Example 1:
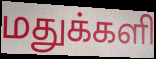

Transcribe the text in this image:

மதுக்களி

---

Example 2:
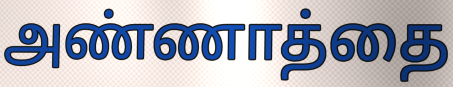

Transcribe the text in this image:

அண்ணாத்தை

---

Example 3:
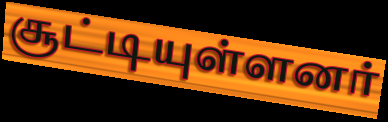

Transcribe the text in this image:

சூட்டியுள்ளனர்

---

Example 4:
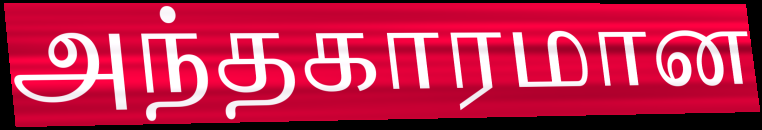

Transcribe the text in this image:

அந்தகாரமான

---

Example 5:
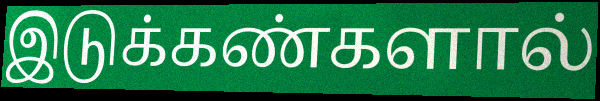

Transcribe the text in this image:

இடுக்கண்களால்